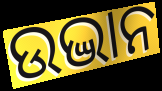
ଉଦ୍ଭାନ